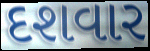
દશવાર